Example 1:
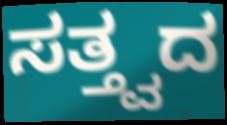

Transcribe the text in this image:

ಸತ್ತ್ವದ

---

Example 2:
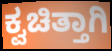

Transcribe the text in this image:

ಕ್ವಚಿತ್ತಾಗಿ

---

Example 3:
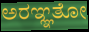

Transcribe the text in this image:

ಅರಞ್ಞತೋ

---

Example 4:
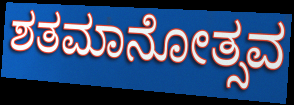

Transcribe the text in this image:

ಶತಮಾನೋತ್ಸವ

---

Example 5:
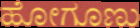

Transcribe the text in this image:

ಹೋಗೂಣು